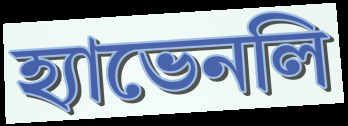
হ্যাভেনলি